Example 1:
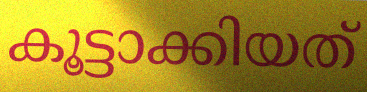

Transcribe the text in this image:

കൂട്ടാക്കിയത്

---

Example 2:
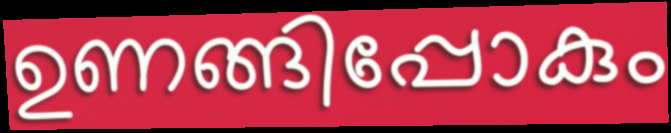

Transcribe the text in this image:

ഉണങ്ങിപ്പോകും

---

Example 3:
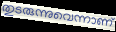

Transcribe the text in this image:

തുടരുന്നുവെന്നാണ്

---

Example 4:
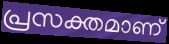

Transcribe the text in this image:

പ്രസക്തമാണ്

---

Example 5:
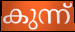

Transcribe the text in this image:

കുന്ന്